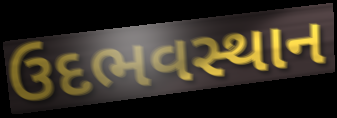
ઉદભવસ્થાન